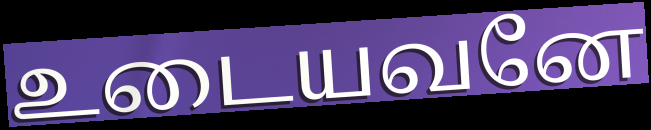
உடையவனே